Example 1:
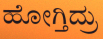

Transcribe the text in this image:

ಹೋಗ್ತಿದ್ರು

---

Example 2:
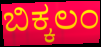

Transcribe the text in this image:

ಬಿಕ್ಕಲಂ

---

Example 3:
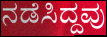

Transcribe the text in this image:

ನಡೆಸಿದ್ದವು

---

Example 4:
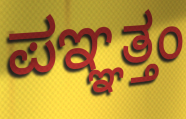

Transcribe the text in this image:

ಪಞ್ಞತ್ತಂ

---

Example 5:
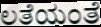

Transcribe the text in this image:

ಲತೆಯಂತೆ